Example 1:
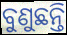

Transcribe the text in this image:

ବୁଣୁଛନ୍ତି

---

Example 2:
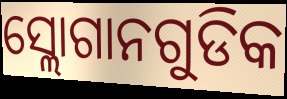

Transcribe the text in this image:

ସ୍ଲୋଗାନଗୁଡିକ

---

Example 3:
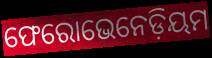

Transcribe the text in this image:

ଫେରୋଭେନେଡ଼ିୟମ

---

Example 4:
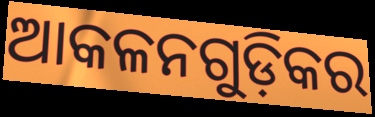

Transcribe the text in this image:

ଆକଳନଗୁଡ଼ିକର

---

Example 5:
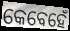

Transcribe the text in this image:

କେବେହେଁ